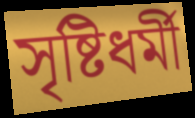
সৃষ্টিধর্মী